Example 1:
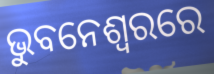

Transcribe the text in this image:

ଭୁବନେଶ୍ଵରରେ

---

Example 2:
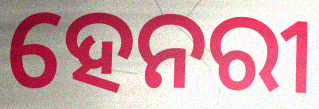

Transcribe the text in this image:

ହେନରୀ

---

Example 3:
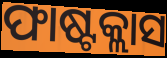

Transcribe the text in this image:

ଫାଷ୍ଟକ୍ଲାସ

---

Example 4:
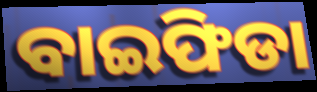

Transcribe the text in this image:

ବାଇଫିଡା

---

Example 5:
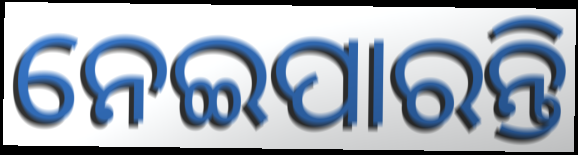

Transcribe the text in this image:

ନେଇପାରନ୍ତି